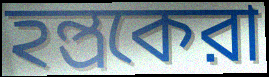
হন্ত্রকেরা